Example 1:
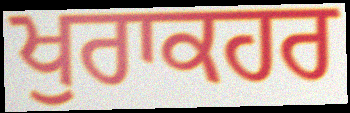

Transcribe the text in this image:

ਖੁਰਾਕਹਰ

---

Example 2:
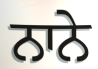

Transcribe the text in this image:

ਨਾਨੇ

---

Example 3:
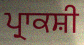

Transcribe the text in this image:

ਪ੍ਰਾਕਸ਼ੀ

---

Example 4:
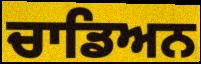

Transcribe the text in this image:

ਚਾਡਿਅਨ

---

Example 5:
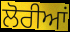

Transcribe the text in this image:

ਲੋਰੀਆਂ